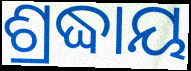
ଶ୍ରଦ୍ଧାୟ